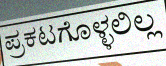
ಪ್ರಕಟಗೊಳ್ಳಲಿಲ್ಲ